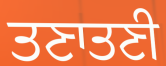
ਤਣਾਤਣੀ